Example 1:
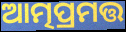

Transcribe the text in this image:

ଆତ୍ମପ୍ରମତ୍ତ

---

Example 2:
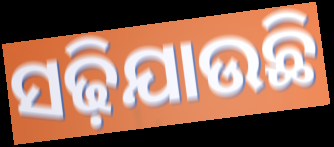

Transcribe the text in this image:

ସଢ଼ିଯାଉଛି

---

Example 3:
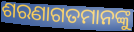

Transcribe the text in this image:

ଶରଣାଗତମାନଙ୍କୁ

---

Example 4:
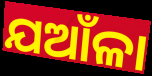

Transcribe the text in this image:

ଯଆଁଳା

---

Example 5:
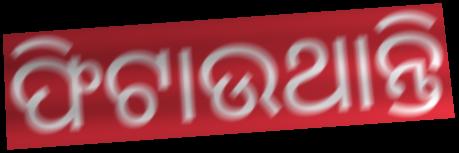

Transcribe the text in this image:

ଫିଟାଉଥାନ୍ତି